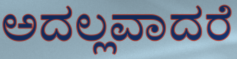
ಅದಲ್ಲವಾದರೆ